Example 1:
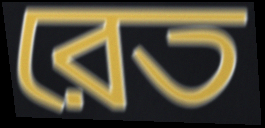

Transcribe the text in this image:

রেত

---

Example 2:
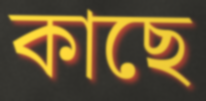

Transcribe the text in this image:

কাছে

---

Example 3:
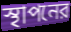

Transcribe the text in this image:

স্থাপনের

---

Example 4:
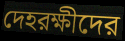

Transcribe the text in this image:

দেহরক্ষীদের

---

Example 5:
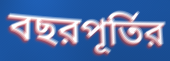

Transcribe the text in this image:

বছরপূর্তির